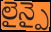
లైన్పై